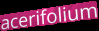
acerifolium